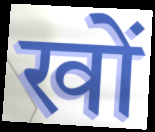
खों